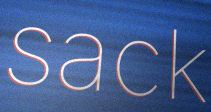
sack